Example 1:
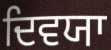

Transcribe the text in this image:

ਦਿਵਯਾ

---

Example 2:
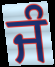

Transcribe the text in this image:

ਜੰ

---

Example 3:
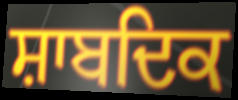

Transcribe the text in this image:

ਸ਼ਾਬਦਿਕ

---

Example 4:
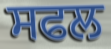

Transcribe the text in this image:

ਸਫਲ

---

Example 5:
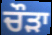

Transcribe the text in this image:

ਚੌੜਾ